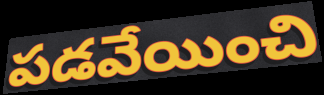
పడవేయించి